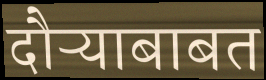
दौऱ्याबाबत